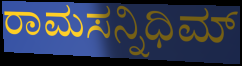
ರಾಮಸನ್ನಿಧಿಮ್